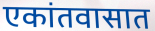
एकांतवासात